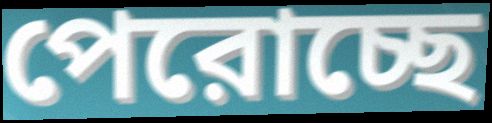
পেরোচ্ছে